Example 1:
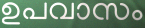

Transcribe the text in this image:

ഉപവാസം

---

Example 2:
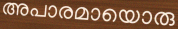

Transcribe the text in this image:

അപാരമായൊരു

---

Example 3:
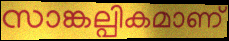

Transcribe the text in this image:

സാങ്കല്പികമാണ്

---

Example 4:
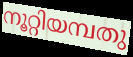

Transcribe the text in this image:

നൂറ്റിയമ്പതു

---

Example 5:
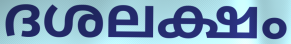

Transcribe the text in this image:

ദശലക്ഷം